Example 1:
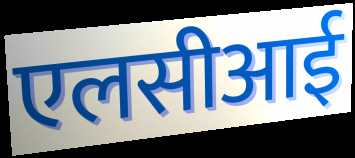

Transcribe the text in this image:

एलसीआई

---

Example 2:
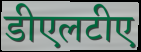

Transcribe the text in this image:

डीएलटीए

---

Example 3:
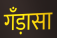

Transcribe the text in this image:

गँड़ासा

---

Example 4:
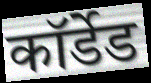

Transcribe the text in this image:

कॉर्डेड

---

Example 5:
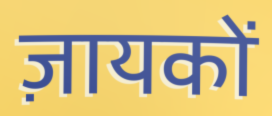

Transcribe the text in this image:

ज़ायकों